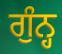
ਗੁੰਨ੍ਹ